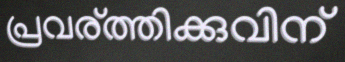
പ്രവര്ത്തിക്കുവിന്